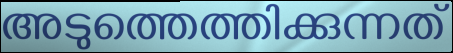
അടുത്തെത്തിക്കുന്നത്